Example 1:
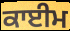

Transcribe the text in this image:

ਕਾਈਮ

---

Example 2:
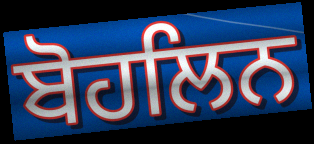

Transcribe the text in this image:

ਬੋਹਲਿਨ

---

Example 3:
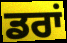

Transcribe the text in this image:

ਡਰਾਂ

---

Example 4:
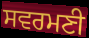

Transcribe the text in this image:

ਸਵਰਮਣੀ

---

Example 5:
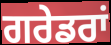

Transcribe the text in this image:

ਗਰੇਡਰਾਂ